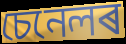
চেনেলৰ